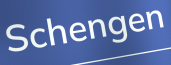
Schengen